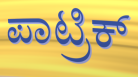
ಪಾಟ್ರಿಕ್